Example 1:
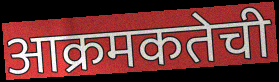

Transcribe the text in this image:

आक्रमकतेची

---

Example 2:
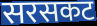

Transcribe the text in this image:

सरसकट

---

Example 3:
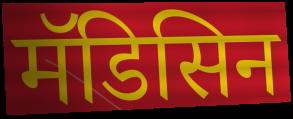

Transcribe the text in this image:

मॅडिसिन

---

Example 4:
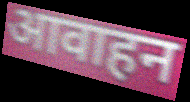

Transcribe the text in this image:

आवाहन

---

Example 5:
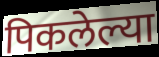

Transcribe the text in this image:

पिकलेल्या